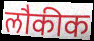
लौकीक